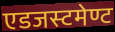
एडजस्टमेण्ट